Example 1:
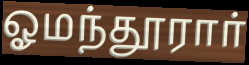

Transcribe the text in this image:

ஓமந்தூரார்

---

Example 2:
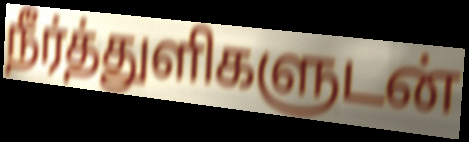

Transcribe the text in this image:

நீர்த்துளிகளுடன்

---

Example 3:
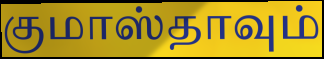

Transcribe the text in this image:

குமாஸ்தாவும்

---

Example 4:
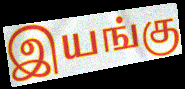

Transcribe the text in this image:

இயங்கு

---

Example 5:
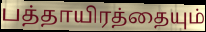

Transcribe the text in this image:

பத்தாயிரத்தையும்